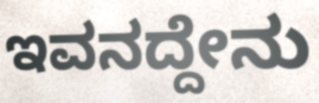
ಇವನದ್ದೇನು